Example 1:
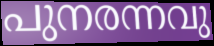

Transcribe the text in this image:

പുനരന്നവു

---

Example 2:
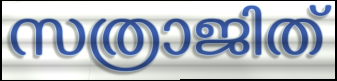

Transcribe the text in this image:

സത്രാജിത്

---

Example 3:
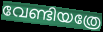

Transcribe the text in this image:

വേണ്ടിയത്രേ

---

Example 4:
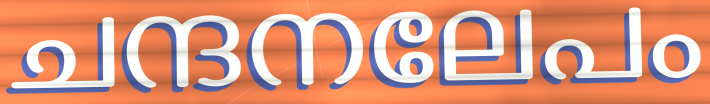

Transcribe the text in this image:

ചന്ദനലേപം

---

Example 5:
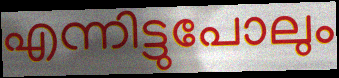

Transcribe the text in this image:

എന്നിട്ടുപോലും